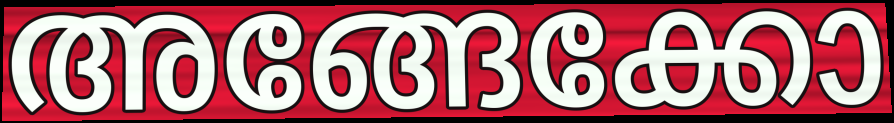
അങ്ങേക്കോ